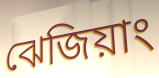
ঝেজিয়াং